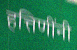
हत्तिणींनी